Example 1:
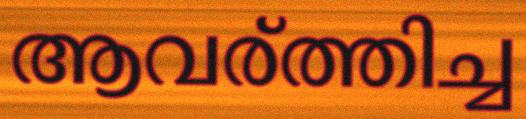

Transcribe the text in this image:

ആവര്ത്തിച്ച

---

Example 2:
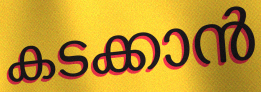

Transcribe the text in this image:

കടക്കാൻ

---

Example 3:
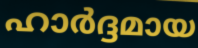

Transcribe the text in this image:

ഹാർദ്ദമായ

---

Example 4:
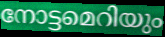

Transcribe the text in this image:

നോട്ടമെറിയും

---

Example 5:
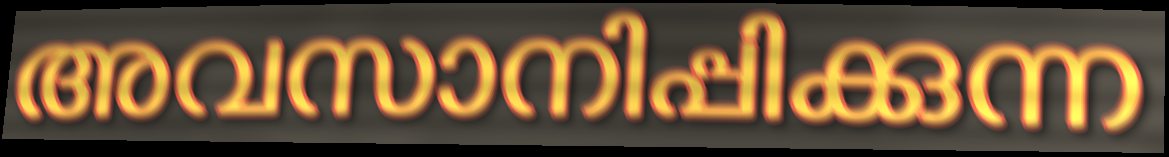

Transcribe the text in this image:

അവസാനിപ്പിക്കുന്ന